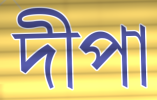
দীপা